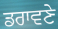
ਡਰਾਵਣੇ